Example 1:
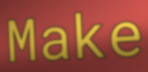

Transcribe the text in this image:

Make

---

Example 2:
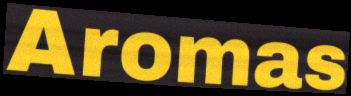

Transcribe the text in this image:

Aromas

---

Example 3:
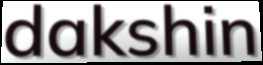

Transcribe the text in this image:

dakshin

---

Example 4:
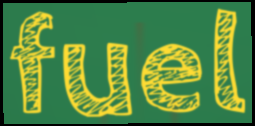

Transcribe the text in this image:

fuel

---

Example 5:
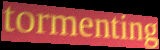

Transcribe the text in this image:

tormenting